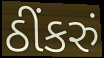
ઠીંકરું